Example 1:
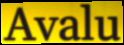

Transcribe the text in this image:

Avalu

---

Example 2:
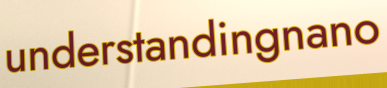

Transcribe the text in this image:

understandingnano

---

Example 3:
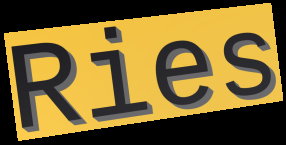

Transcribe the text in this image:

Ries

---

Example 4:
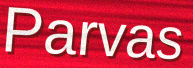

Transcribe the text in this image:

Parvas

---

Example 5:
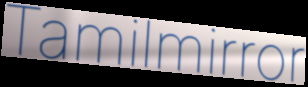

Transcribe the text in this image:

Tamilmirror